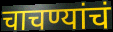
चाचण्यांचं